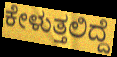
ಕೇಳುತ್ತಲಿದ್ದೆ